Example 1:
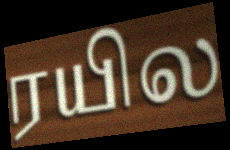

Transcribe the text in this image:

ரயில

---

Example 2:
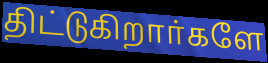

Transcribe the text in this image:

திட்டுகிறார்களே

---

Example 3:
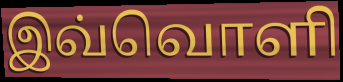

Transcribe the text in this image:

இவ்வொளி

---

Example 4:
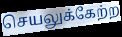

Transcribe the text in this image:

செயலுக்கேற்ற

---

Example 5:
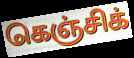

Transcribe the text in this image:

கெஞ்சிக்